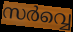
സർവ്വെ